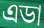
এডা